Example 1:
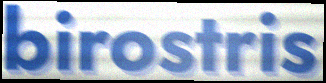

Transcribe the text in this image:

birostris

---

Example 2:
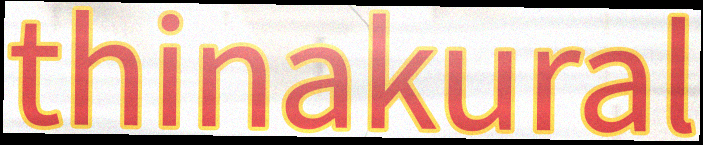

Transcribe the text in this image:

thinakural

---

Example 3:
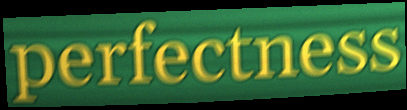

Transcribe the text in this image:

perfectness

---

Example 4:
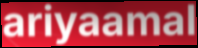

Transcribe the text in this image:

ariyaamal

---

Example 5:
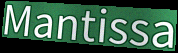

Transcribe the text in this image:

Mantissa